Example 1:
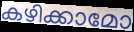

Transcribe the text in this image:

കഴിക്കാമോ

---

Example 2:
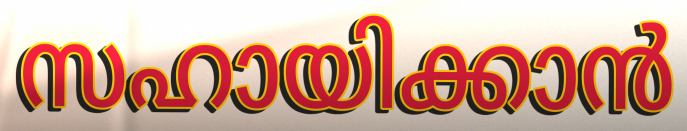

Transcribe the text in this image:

സഹായിക്കാൻ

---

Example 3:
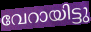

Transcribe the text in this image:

വേറായിട്ടു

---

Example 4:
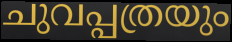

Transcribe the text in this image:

ചുവപ്പത്രയും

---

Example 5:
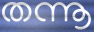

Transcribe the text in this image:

തന്നൂ